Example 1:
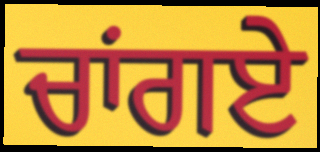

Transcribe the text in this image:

ਚਾਂਗਏ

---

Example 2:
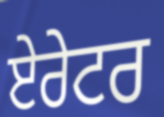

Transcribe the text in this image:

ਏਰੇਟਰ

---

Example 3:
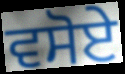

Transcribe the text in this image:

ਵਸੋਏ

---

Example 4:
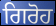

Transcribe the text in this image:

ਗਿਰੋਹ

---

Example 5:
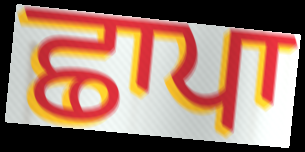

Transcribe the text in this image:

ਛਾਪਾ